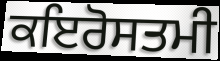
ਕਇਰੋਸਤਮੀ